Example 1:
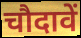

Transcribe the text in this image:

चौदावें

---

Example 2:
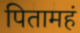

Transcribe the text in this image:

पितामहं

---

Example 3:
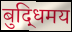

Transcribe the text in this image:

बुद्धिमय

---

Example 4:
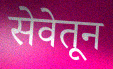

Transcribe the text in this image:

सेवेतून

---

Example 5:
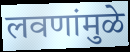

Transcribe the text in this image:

लवणांमुळे